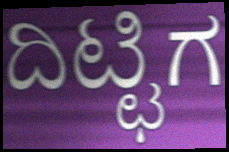
ದಿಟ್ಟಿಗ